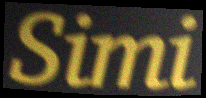
Simi